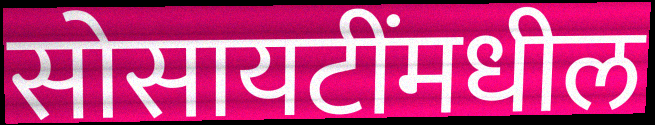
सोसायटींमधील